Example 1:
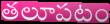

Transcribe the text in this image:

తలూపటం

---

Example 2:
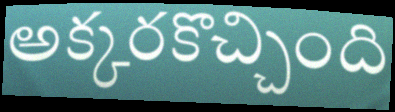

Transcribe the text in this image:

అక్కరకొచ్చింది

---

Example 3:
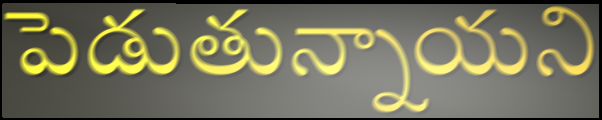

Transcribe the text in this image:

పెడుతున్నాయని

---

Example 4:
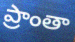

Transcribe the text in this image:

ప్రాంతా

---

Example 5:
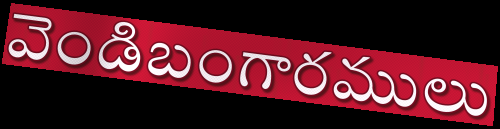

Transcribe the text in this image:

వెండిబంగారములు